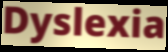
Dyslexia